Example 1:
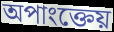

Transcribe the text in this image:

অপাংক্তেয়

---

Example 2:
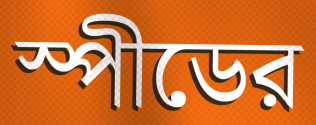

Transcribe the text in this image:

স্পীডের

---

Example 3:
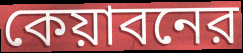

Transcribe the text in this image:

কেয়াবনের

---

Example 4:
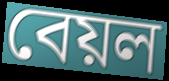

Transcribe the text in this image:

বেয়ল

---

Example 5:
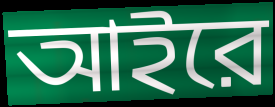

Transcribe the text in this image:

আইরে